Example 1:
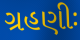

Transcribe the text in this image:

ગ્રહણીઃ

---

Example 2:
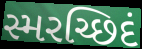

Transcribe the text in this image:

સ્મરચ્છિદં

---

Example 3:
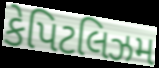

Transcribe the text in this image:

કેપિટલિઝમ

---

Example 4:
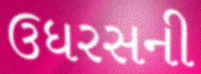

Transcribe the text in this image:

ઉધરસની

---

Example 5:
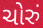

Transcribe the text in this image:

ચોરું